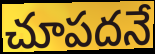
చూపదనే